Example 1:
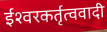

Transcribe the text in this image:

ईश्वरकर्तृत्ववादी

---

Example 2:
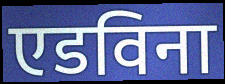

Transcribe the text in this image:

एडविना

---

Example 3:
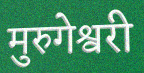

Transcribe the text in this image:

मुरुगेश्वरी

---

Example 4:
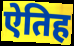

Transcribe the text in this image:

ऐतिह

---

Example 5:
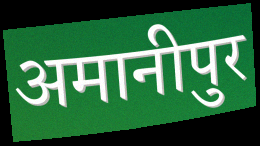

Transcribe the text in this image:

अमानीपुर